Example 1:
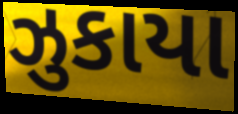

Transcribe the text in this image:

ઝુકાયા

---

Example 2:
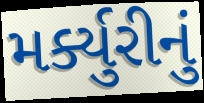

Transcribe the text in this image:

મર્ક્યુરીનું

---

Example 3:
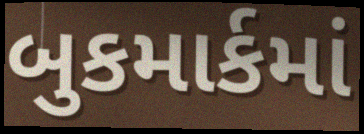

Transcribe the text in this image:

બુકમાર્કમાં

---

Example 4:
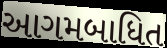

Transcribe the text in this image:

આગમબાધિત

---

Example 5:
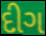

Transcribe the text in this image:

દીગ